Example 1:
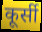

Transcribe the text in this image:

कूर्सी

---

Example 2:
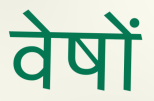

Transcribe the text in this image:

वेषों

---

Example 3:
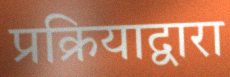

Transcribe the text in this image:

प्रक्रियाद्वारा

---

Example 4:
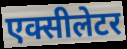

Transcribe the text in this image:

एक्सीलेटर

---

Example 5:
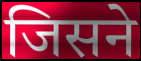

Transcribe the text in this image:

जिसने